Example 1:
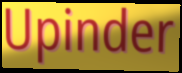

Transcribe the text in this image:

Upinder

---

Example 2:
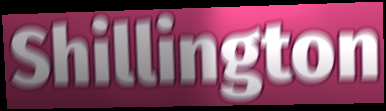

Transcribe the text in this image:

Shillington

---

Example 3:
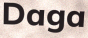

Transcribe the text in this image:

Daga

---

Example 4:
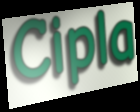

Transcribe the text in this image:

Cipla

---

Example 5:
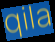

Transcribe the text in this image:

qila